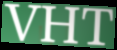
VHT